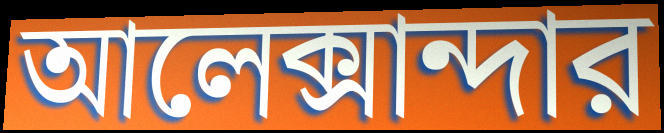
আলেক্সান্দার